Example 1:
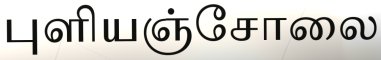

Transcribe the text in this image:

புளியஞ்சோலை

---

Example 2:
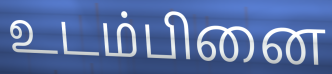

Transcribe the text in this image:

உடம்பினை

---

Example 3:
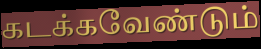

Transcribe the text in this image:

கடக்கவேண்டும்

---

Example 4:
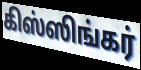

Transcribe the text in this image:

கிஸ்ஸிங்கர்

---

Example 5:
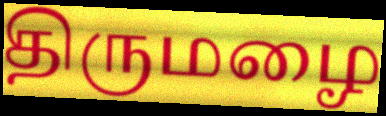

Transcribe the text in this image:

திருமழை